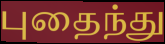
புதைந்து